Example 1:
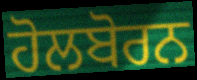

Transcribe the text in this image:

ਹੋਲਬੋਰਨ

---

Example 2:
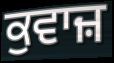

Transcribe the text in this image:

ਕੁਵਾਜ਼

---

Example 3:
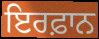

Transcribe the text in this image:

ਇਰਫ਼ਾਨ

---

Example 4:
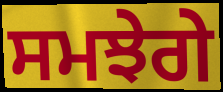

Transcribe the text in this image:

ਸਮਝੇਗੇ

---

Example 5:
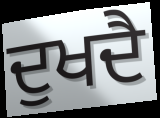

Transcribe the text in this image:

ਦੁਖਦੈ